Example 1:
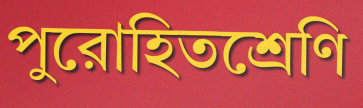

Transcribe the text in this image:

পুরোহিতশ্রেণি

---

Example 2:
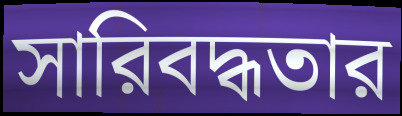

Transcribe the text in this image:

সারিবদ্ধতার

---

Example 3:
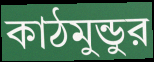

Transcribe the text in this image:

কাঠমুন্ডুর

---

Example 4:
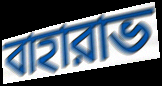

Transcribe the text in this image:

বাহারাভ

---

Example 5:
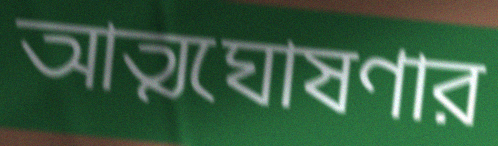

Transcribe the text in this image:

আত্মঘোষণার